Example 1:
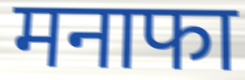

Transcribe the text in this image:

मनाफा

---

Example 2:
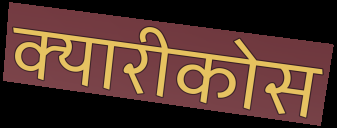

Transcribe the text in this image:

क्यारीकोस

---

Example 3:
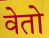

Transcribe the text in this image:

वेतो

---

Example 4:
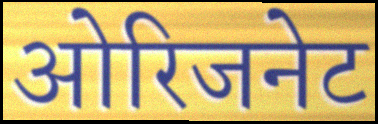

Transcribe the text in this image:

ओरिजनेट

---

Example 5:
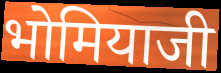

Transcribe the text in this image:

भोमियाजी